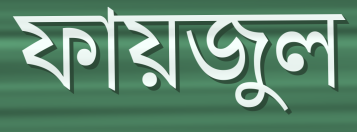
ফায়জুল